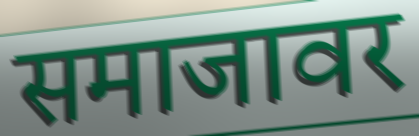
समाजावर